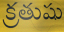
క్రతుషు